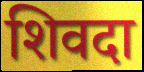
शिवदा